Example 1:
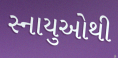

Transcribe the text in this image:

સ્નાયુઓથી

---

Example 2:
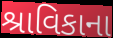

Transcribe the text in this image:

શ્રાવિકાના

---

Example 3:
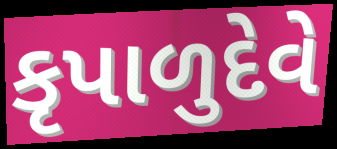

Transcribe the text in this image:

કૃપાળુદેવે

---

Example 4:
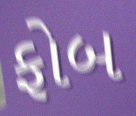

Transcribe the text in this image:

ફોબ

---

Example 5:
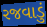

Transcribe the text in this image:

રજવાડું